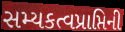
સમ્યકત્વપ્રાપ્તિની